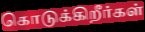
கொடுக்கிறீர்கள்